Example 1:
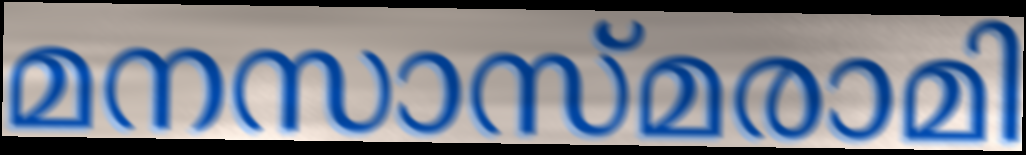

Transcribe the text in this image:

മനസാസ്മരാമി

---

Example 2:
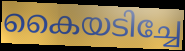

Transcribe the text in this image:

കൈയടിച്ചേ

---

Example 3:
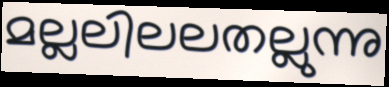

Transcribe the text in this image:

മല്ലലിലലതല്ലുന്നു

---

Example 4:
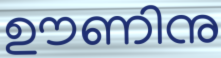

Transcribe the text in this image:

ഊണിനു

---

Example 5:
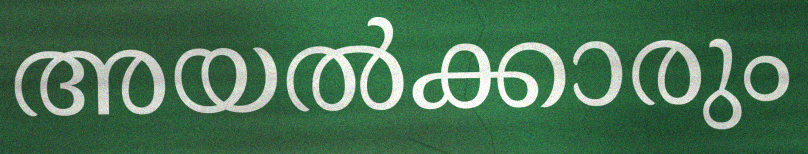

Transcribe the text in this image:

അയൽക്കാരും